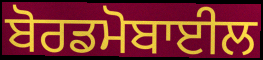
ਬੋਰਡਮੋਬਾਈਲ